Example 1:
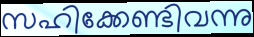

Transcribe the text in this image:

സഹിക്കേണ്ടിവന്നു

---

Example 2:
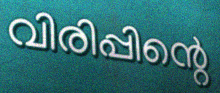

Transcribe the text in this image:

വിരിപ്പിന്റെ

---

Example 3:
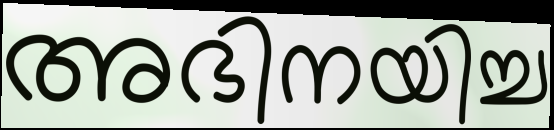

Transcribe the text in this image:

അഭിനയിച്ച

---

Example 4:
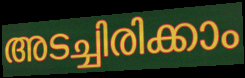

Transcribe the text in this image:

അടച്ചിരിക്കാം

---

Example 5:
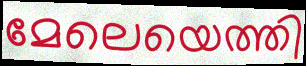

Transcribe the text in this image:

മേലെയെത്തി